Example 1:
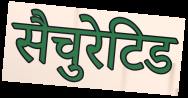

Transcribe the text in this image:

सैचुरेटिड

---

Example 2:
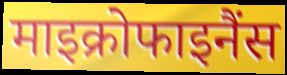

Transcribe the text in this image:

माइक्रोफाइनैंस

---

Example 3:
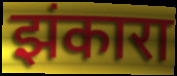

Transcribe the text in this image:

झंकारा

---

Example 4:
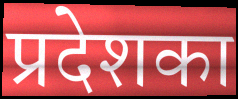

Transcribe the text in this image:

प्रदेशका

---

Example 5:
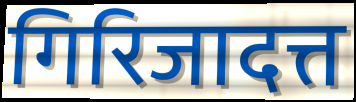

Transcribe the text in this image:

गिरिजादत्त